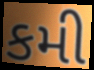
કમી